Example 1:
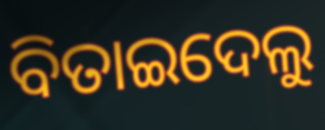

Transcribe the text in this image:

ବିତାଇଦେଲୁ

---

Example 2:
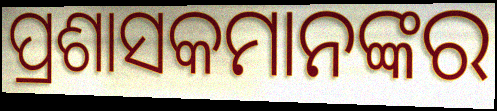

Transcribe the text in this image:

ପ୍ରଶାସକମାନଙ୍କର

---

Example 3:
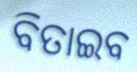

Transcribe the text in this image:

ବିତାଇବ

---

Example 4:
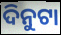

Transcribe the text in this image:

ଦିନୁଟା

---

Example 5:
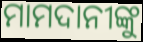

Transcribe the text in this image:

ମାମଦାନୀଙ୍କୁ